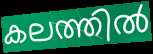
കലത്തിൽ